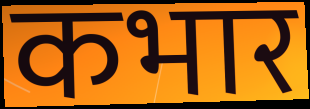
कभार